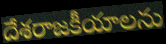
దేశరాజకీయాలను